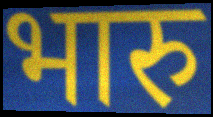
भारु